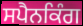
ਸਪੈਨਕਿੰਗ